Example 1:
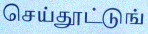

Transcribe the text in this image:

செய்தூட்டுங்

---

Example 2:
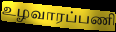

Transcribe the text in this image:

உழவாரப்பணி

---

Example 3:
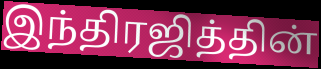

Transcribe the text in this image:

இந்திரஜித்தின்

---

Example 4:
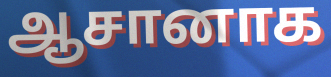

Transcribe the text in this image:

ஆசானாக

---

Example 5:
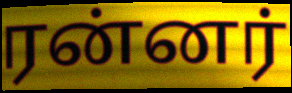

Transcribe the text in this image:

ரன்னர்